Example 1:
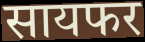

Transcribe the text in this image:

सायफर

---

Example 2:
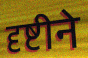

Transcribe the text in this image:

दृष्टीने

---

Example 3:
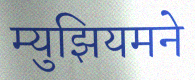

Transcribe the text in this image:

म्युझियमने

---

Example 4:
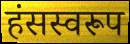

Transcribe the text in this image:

हंसस्वरूप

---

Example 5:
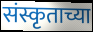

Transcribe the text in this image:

संस्कृताच्या